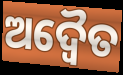
ଅଦ୍ୱୈତ